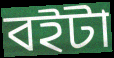
বইটা